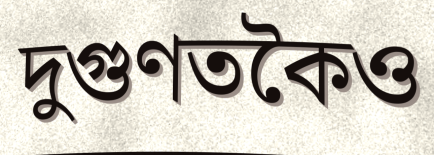
দুগুণতকৈও